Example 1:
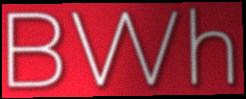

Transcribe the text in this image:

BWh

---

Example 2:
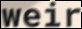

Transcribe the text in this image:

weir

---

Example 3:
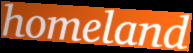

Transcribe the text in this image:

homeland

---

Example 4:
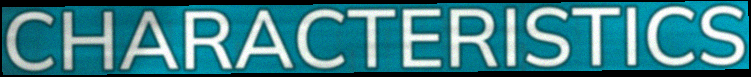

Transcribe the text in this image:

CHARACTERISTICS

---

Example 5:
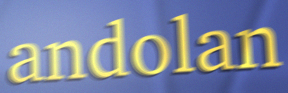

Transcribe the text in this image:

andolan